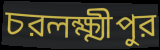
চরলক্ষ্মীপুর